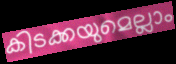
കിടക്കയുമെല്ലാം